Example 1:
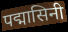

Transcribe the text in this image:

पद्मासिनी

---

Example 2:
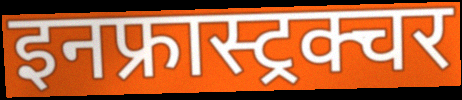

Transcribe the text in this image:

इनफ्रास्ट्रक्चर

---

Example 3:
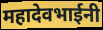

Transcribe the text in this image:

महादेवभाईनी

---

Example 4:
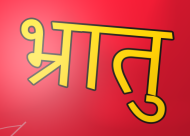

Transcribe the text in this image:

भ्रातु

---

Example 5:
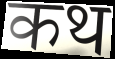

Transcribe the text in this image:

कथ